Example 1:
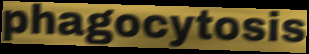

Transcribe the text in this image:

phagocytosis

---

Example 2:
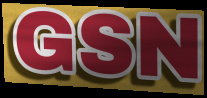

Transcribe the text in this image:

GSN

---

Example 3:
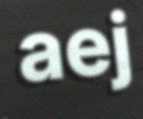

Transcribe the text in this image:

aej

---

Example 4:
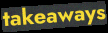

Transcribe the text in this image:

takeaways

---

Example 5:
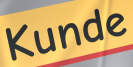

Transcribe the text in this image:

Kunde